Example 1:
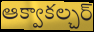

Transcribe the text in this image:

ఆక్వాకల్చర్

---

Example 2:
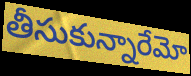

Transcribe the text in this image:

తీసుకున్నారేమో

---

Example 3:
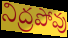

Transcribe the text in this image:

నిద్రపోవు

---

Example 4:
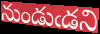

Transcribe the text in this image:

నుండుఁడని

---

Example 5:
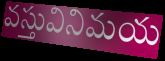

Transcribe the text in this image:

వస్తువినిమయ